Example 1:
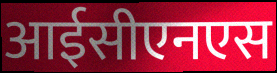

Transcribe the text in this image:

आईसीएनएस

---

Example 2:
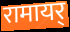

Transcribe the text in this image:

रामायर्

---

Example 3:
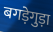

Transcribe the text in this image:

बगड़ेगुड़ा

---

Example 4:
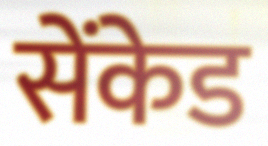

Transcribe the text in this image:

सेंकेड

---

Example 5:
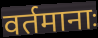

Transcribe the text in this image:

वर्तमानाः